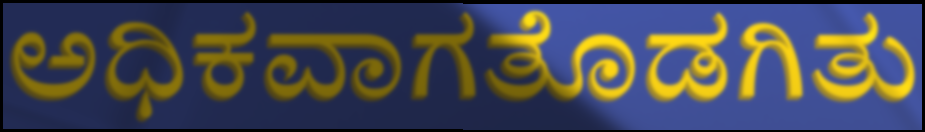
ಅಧಿಕವಾಗತೊಡಗಿತು